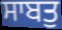
ਸਾਬਤੁ